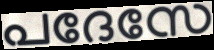
പദേസേ